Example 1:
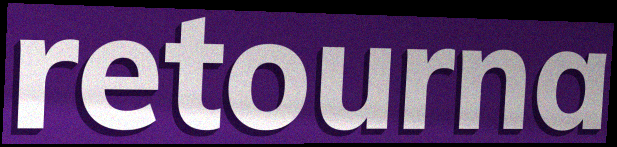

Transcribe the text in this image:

retourna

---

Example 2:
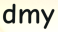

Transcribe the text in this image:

dmy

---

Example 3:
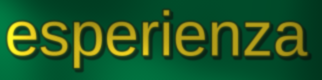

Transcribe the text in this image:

esperienza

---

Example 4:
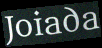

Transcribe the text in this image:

Joiada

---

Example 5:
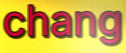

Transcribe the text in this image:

chang